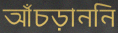
আঁচড়াননি